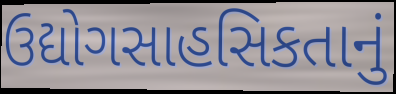
ઉદ્યોગસાહસિકતાનું